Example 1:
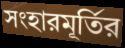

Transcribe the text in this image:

সংহারমূর্তির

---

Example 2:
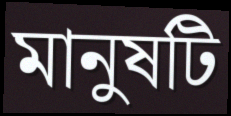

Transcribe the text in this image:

মানুষটি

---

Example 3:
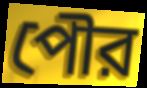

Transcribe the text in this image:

পৌর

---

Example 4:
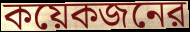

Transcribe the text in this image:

কয়েকজনের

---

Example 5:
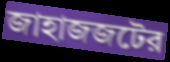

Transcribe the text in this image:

জাহাজজটের